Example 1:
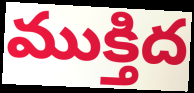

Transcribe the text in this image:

ముక్తిద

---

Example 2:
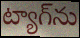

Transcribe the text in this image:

ట్యాగ్‌ను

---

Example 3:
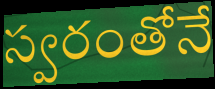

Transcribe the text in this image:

స్వరంతోనే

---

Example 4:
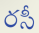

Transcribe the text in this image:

రసీ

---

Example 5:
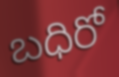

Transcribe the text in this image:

బధిరో